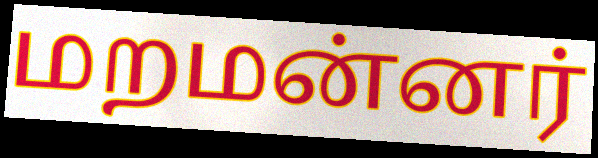
மறமன்னர்